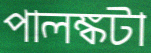
পালঙ্কটা